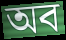
অব